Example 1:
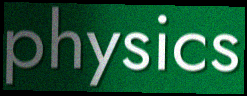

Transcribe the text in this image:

physics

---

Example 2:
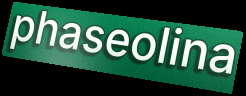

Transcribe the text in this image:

phaseolina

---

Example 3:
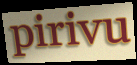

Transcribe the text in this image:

pirivu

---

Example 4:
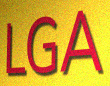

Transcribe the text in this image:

LGA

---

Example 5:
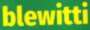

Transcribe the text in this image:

blewitti